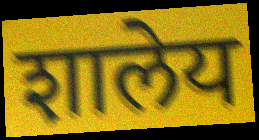
शालेय